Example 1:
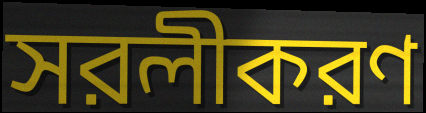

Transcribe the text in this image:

সরলীকরণ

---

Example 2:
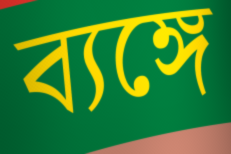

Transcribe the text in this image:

ব্যঙ্গে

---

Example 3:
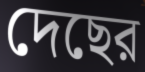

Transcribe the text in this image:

দেছের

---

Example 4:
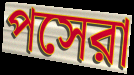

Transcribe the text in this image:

পসেরা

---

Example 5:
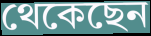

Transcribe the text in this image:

থেকেছেন